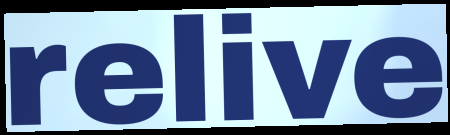
relive